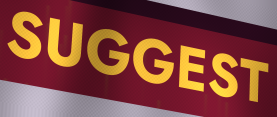
SUGGEST